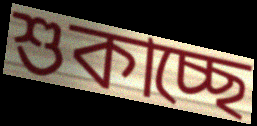
শুকাচ্ছে